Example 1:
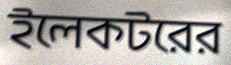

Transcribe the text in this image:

ইলেকটরের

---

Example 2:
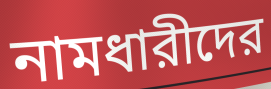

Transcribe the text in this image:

নামধারীদের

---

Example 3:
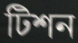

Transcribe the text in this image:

টিশন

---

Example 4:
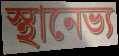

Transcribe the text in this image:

স্থানেভ্য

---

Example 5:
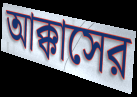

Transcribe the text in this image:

আক্কাসের